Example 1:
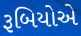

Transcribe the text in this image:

રૂબિયોએ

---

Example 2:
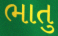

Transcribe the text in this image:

ભાતુ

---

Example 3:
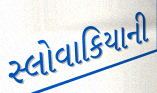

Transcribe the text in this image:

સ્લોવાકિયાની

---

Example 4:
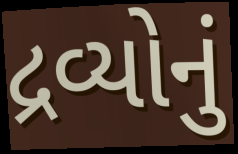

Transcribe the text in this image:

દ્રવ્યોનું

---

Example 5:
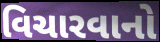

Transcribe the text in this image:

વિચારવાનો